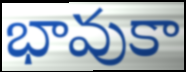
భావుకా